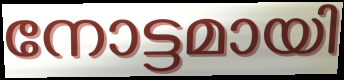
നോട്ടമായി